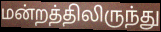
மன்றத்திலிருந்து